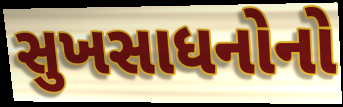
સુખસાધનોનો